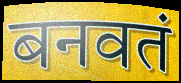
बनवतं